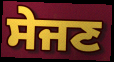
ਸੇਜਣ